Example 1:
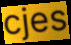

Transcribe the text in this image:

cjes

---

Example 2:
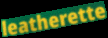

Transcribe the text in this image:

leatherette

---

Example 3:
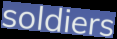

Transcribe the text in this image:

soldiers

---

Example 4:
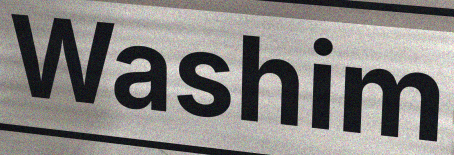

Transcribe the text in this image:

Washim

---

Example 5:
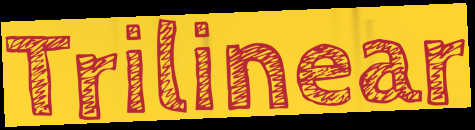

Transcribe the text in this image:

Trilinear